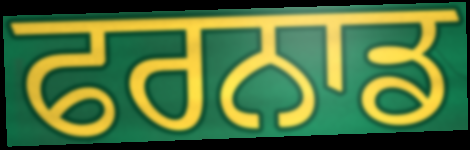
ਫਰਨਾਡ